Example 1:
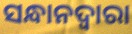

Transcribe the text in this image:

ସନ୍ଧାନଦ୍ୱାରା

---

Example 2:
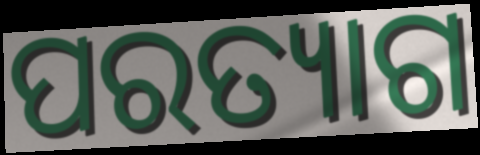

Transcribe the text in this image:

ପରତ୍ୟାଗ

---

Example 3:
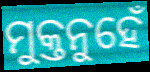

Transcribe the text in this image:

ମୁକ୍ତନୁହେଁ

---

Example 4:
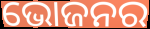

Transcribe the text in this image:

ଭୋଜନର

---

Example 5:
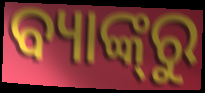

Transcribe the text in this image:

ବ୍ୟାଙ୍କ୍‌ରୁ